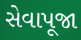
સેવાપૂજા